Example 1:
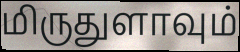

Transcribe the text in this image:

மிருதுளாவும்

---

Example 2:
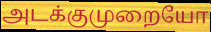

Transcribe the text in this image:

அடக்குமுறையோ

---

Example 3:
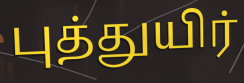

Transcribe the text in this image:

புத்துயிர்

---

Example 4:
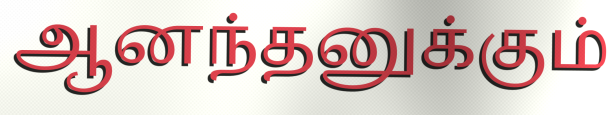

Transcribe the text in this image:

ஆனந்தனுக்கும்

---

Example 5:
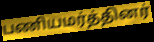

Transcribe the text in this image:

பணியமர்த்தினர்